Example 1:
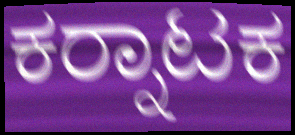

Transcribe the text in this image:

ಕರ‍್ನಾಟಕ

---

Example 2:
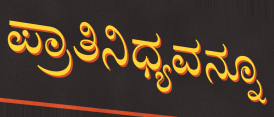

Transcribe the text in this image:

ಪ್ರಾತಿನಿಧ್ಯವನ್ನೂ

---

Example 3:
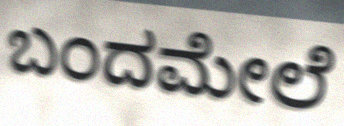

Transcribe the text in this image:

ಬಂದಮೇಲೆ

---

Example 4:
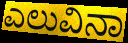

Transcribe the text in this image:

ಎಲುವಿನಾ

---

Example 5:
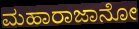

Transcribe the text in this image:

ಮಹಾರಾಜಾನೋ